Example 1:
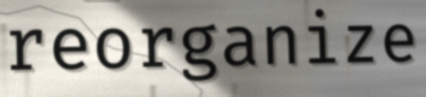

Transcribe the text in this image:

reorganize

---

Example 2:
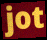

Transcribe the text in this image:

jot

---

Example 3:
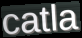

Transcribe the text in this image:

catla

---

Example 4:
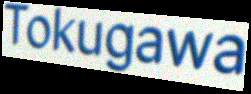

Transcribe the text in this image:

Tokugawa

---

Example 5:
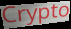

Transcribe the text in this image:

Crypto